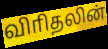
விரிதலின்